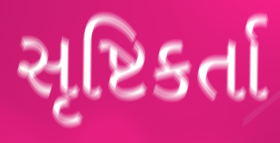
સૃષ્ટિકર્તા